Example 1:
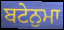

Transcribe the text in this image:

ਬਟੇਨੁਮਾ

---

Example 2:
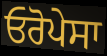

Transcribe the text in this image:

ਓਰੋਪੇਸਾ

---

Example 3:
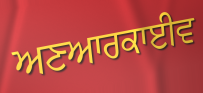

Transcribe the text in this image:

ਅਣਆਰਕਾਈਵ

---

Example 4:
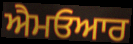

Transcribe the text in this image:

ਐਮਓਆਰ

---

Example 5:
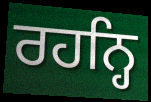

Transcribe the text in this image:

ਰਹਨ੍ਹਿ